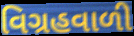
વિગ્રહવાળી